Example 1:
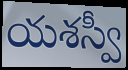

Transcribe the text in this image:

యశస్వీ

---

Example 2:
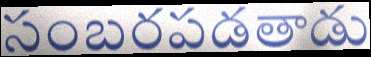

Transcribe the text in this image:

సంబరపడతాడు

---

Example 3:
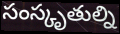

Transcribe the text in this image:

సంస్కృతుల్ని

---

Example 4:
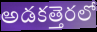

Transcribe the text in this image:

అడకత్తెరలో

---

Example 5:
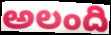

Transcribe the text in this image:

అలంది